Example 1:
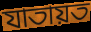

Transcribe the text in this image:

যাতায়ত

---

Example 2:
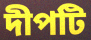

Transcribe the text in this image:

দীপটি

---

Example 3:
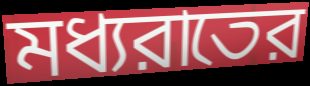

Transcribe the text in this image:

মধ্যরাতের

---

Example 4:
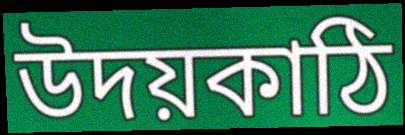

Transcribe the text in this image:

উদয়কাঠি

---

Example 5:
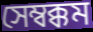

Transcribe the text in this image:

সেম্বক্কম